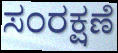
ಸಂರಕ್ಷಣೆ